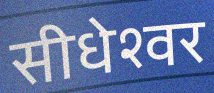
सीधेश्वर